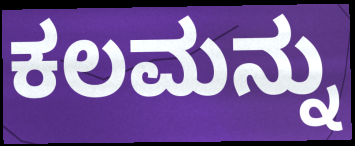
ಕಲಮನ್ನು